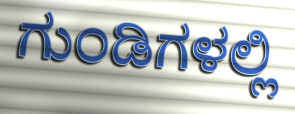
ಗುಂಡಿಗಳಲ್ಲಿ